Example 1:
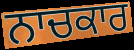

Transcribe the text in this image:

ਨਾਚਕਾਰ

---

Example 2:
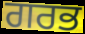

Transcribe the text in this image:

ਗਰਭ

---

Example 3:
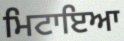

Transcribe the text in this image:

ਮਿਟਾਇਆ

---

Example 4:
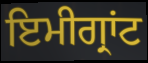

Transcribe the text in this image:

ਇਮੀਗ੍ਰਾਂਟ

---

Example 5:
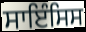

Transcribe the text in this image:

ਸਾਇੰਸਿਸ